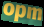
opm